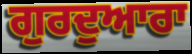
ਗੁਰਦੁਆਰਾ